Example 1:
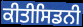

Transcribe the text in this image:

ਕੀਤੀਸਿਡਨੀ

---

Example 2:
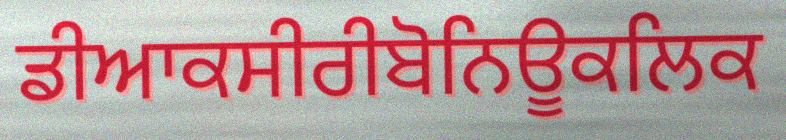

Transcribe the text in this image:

ਡੀਆਕਸੀਰੀਬੋਨਿਊਕਲਿਕ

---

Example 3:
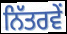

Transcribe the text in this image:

ਨਿੱਤਰਵੇਂ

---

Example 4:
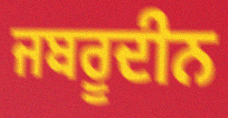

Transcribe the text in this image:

ਜਬਰੂਦੀਨ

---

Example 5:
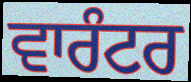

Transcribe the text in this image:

ਵਾਰੰਟਰ